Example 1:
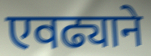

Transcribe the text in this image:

एवढ्याने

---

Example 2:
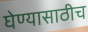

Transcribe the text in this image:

घेण्यासाठीच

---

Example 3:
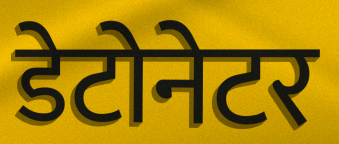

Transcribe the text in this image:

डेटोनेटर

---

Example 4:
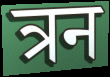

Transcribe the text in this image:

त्रन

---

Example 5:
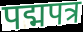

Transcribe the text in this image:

पद्मपत्र